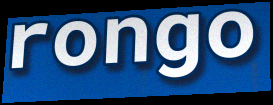
rongo